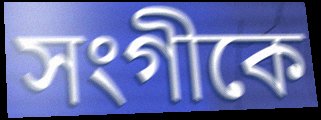
সংগীকে